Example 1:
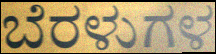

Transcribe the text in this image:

ಬೆರಳುಗಳ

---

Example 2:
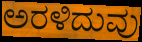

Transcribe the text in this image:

ಅರಳಿದುವು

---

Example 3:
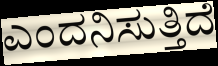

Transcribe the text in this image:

ಎಂದನಿಸುತ್ತಿದೆ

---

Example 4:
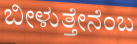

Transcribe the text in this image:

ಬೀಳುತ್ತೇನೆಂಬ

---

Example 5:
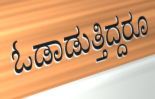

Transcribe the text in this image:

ಓಡಾಡುತ್ತಿದ್ದರೂ